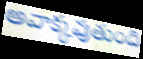
అవాక్కవుతుంది